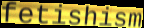
fetishism